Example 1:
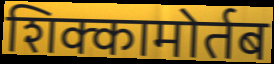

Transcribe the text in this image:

शिक्‍कामोर्तब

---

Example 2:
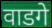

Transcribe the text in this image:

वाडगे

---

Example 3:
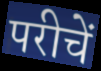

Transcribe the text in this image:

परीचें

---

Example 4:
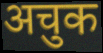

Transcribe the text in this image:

अचुक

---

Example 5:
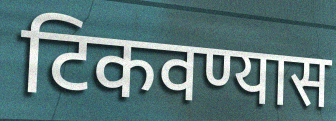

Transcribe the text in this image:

टिकवण्यास